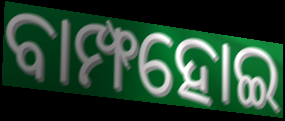
ବାମ୍ଫହୋଇ